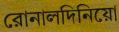
রোনালদিনিয়ো